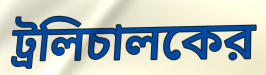
ট্রলিচালকের